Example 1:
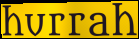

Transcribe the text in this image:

hurrah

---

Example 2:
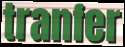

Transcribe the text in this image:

tranfer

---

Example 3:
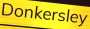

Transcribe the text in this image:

Donkersley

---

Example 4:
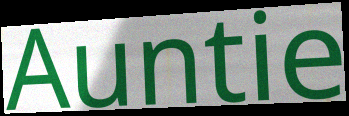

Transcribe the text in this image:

Auntie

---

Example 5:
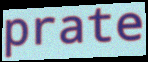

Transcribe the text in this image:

prate